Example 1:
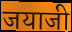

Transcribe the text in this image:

जयाजी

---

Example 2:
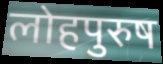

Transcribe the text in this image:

लोहपुरुष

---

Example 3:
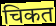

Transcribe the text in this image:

चिकत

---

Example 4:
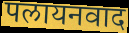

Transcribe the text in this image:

पलायनवाद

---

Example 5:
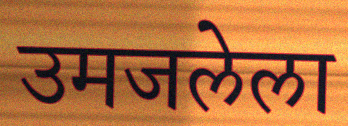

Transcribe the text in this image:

उमजलेला